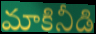
మాకినీడి